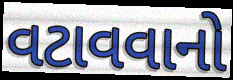
વટાવવાનો